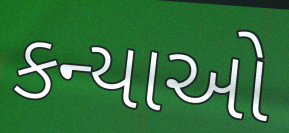
કન્યાઓ